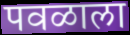
पवळाला